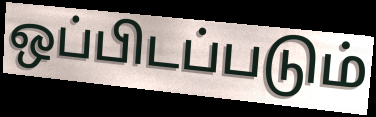
ஒப்பிடப்படும்